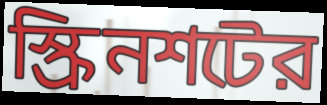
স্ক্রিনশটের